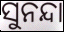
ସୁନନ୍ଦା